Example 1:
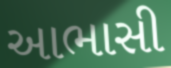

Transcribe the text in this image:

આભાસી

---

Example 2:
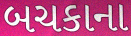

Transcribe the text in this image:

બચકાના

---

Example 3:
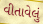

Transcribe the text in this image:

વીતાવેલું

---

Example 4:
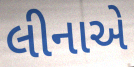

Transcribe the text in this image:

લીનાએ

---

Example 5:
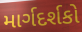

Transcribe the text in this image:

માર્ગદર્શકો